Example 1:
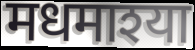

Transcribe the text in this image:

मधमाश्‍या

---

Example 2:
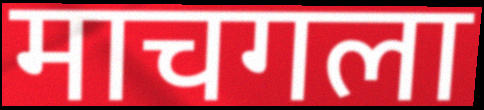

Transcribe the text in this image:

माचगला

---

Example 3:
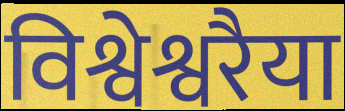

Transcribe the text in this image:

विश्वेश्वरैया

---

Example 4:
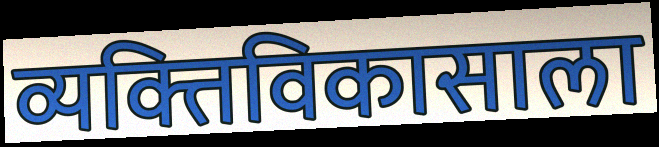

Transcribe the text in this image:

व्यक्तिविकासाला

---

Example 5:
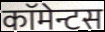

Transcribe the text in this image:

कॉमेन्टस